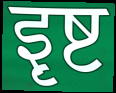
इृष्ट